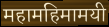
महामहिमामयी